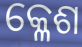
କ୍ଳେଶ